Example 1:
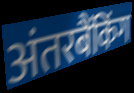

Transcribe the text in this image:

अंतरबैंकिंग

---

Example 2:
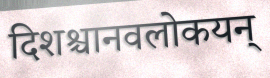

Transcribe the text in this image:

दिशश्चानवलोकयन्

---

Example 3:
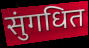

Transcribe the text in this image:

सुंगधित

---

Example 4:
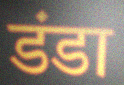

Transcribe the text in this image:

डंडा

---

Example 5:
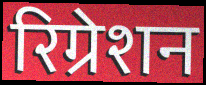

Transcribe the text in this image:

रिग्रेशन